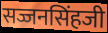
सज्जनसिंहजी